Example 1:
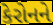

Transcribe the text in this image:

કેરોનને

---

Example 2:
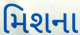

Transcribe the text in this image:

મિશના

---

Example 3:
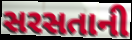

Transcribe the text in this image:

સરસતાની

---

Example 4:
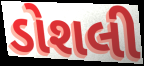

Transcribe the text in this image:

ડોશલી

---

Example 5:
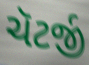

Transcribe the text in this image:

ચૅટર્જી